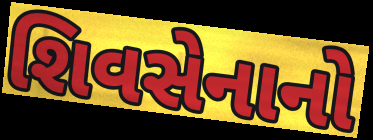
શિવસેનાનો